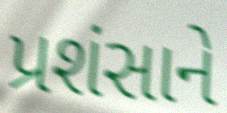
પ્રશંસાને